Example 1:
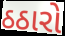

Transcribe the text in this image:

ઠઠારો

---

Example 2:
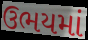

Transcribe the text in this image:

ઉભયમાં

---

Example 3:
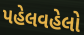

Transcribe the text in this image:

પહેલવહેલો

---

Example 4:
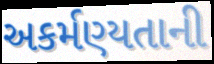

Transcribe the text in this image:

અકર્મણ્યતાની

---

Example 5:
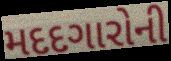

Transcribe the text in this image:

મદદગારોની